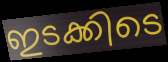
ഇടക്കിടെ